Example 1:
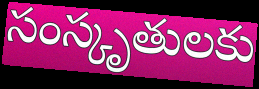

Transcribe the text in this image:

సంస్కృతులకు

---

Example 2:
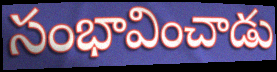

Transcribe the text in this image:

సంభావించాడు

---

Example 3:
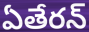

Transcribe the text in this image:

ఏతేరన్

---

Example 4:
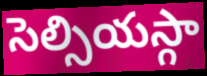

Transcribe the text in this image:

సెల్సియస్గా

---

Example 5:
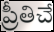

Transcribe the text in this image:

ప్రీతిచే